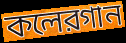
কলেরগান